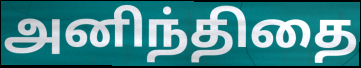
அனிந்திதை